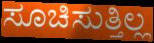
ಸೂಚಿಸುತ್ತಿಲ್ಲ